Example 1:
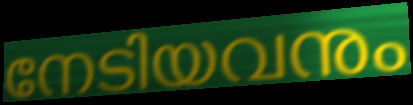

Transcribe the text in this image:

നേടിയവനും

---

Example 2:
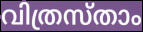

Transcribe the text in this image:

വിത്രസ്താം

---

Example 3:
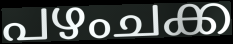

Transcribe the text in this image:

പഴംചക്ക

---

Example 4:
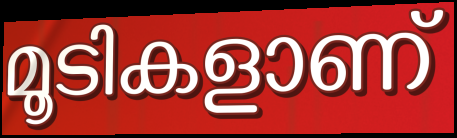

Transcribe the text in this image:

മൂടികളാണ്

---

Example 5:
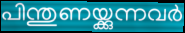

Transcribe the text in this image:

പിന്തുണയ്ക്കുന്നവർ